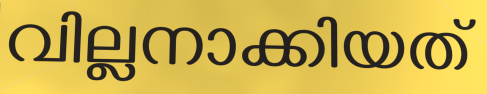
വില്ലനാക്കിയത്